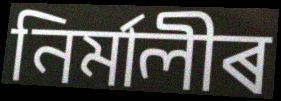
নিৰ্মালীৰ